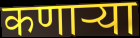
कणाऱ्या